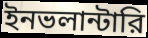
ইনভলান্টারি